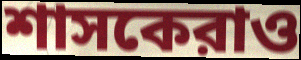
শাসকেরাও